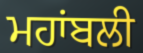
ਮਹਾਂਬਲੀ